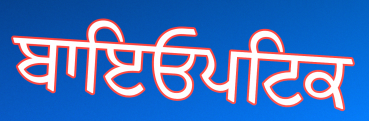
ਬਾਇਓਪਟਿਕ